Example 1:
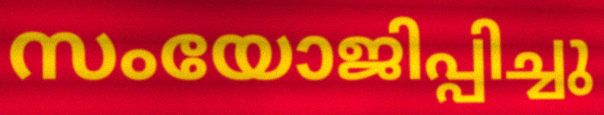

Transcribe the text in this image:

സംയോജിപ്പിച്ചു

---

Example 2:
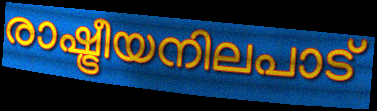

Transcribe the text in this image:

രാഷ്ട്രീയനിലപാട്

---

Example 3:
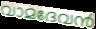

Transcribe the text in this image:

വാമദേവൻ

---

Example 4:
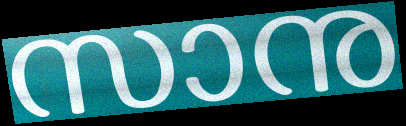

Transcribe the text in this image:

സാനു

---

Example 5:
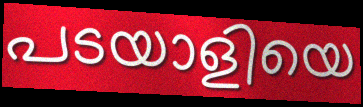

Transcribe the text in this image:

പടയാളിയെ